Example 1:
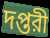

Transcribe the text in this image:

দপ্তরী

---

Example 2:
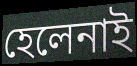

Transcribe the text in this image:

হেলেনাই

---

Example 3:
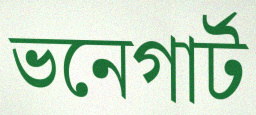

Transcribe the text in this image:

ভনেগার্ট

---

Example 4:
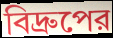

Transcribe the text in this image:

বিদ্রুপের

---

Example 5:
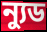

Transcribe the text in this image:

ন্যুড